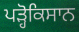
ਪੜ੍ਹੋਕਿਸਾਨ